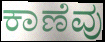
ಕಾಣೆವು